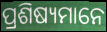
ପ୍ରଶିଷ୍ୟମାନେ